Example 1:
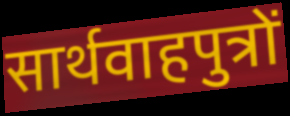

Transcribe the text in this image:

सार्थवाहपुत्रों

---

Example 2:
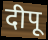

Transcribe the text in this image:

दीपू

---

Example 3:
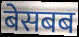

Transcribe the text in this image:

बेसबब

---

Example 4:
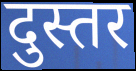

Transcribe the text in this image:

दुस्तर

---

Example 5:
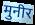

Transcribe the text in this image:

मुनीर